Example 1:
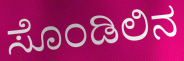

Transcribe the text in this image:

ಸೊಂಡಿಲಿನ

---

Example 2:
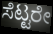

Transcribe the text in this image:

ಸೆಟ್ಟರೇ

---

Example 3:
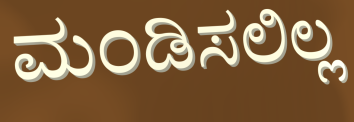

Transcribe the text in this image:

ಮಂಡಿಸಲಿಲ್ಲ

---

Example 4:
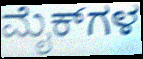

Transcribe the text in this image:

ಮೈಕ್‌ಗಳ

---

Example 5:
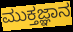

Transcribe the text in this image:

ಮುಕ್ತಜ್ಞಾನ